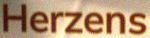
Herzens